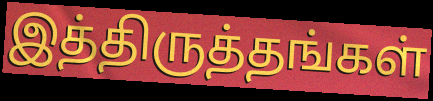
இத்திருத்தங்கள்